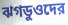
ঝগডুওদের